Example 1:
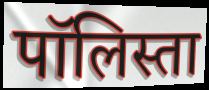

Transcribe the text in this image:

पॉलिस्ता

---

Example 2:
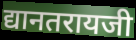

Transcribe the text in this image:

द्यानतरायजी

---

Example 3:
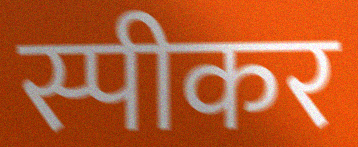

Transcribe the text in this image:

स्‍पीकर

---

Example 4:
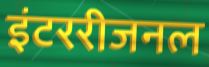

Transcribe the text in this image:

इंटररीजनल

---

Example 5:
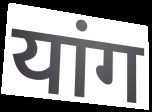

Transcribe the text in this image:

यांग